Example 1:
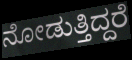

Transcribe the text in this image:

ನೋಡುತ್ತಿದ್ದರೆ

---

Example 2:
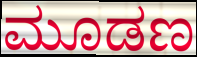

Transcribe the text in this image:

ಮೂಡಣ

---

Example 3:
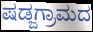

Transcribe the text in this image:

ಷಡ್ಜಗ್ರಾಮದ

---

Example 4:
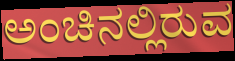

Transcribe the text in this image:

ಅಂಚಿನಲ್ಲಿರುವ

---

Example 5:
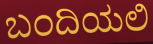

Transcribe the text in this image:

ಬಂದಿಯಲಿ